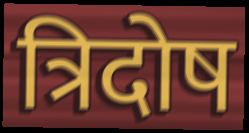
त्रिदोष